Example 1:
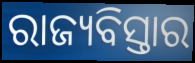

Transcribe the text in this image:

ରାଜ୍ୟବିସ୍ତାର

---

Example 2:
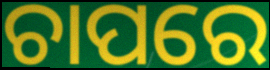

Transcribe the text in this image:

ଚାପରେ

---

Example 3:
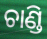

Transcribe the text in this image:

ଚାଣ୍ଡି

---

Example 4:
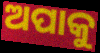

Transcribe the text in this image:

ଅପାକୁ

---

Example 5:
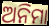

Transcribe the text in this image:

ଅନିମା